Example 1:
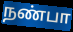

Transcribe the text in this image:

நண்பா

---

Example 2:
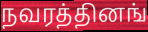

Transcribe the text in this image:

நவரத்தினங்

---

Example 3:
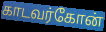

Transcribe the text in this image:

காடவர்கோன்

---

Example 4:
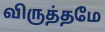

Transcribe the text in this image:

விருத்தமே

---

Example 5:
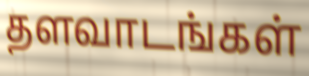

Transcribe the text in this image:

தளவாடங்கள்